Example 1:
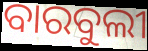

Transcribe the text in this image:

ବାରବୁଲୀ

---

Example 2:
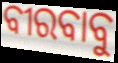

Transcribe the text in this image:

ବୀରବାବୁ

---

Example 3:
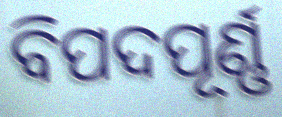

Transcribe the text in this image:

ବିପଦପୂର୍ଣ୍ଣ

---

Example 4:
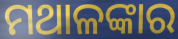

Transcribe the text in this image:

ମଥାଳଙ୍କାର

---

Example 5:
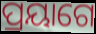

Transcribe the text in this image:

ପ୍ରୟାଗେ